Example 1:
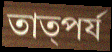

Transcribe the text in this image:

তাত্পর্য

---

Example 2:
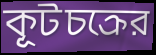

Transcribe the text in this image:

কূটচক্রের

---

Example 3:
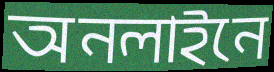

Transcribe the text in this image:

অনলাইনে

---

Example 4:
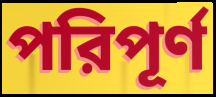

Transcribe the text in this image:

পরিপূর্ণ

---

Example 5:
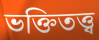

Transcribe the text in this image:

ভক্তিতত্ত্ব